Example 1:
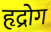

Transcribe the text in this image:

हृद्रोग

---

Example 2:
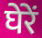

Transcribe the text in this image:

घेरें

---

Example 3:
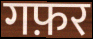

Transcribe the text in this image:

गफ़र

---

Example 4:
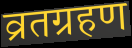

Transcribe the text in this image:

व्रतग्रहण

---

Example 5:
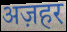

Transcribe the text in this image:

अज़हर